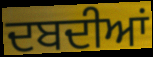
ਦਬਦੀਆਂ